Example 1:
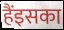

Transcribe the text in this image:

हैंइसका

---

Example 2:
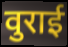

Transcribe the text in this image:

वुराई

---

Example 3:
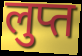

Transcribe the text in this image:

लुप्‍त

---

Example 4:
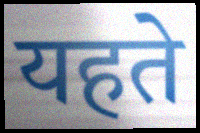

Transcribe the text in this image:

यहते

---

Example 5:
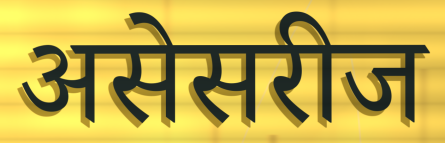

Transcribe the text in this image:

असेसरीज